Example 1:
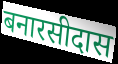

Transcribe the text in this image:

बनारसीदास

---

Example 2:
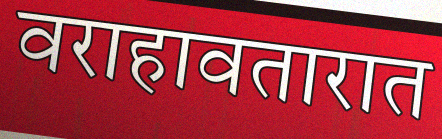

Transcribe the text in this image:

वराहावतारात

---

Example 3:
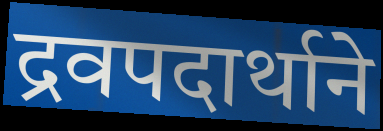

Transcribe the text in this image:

द्रवपदार्थाने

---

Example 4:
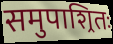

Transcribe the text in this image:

समुपाश्रितः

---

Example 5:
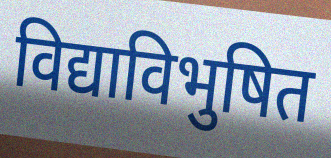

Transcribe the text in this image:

विद्याविभुषित